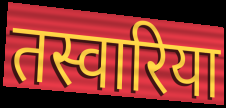
तस्वारिया